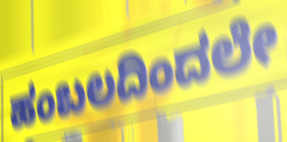
ಹಂಬಲದಿಂದಲೇ